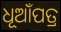
ଧୂଆଁପତ୍ର